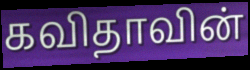
கவிதாவின்